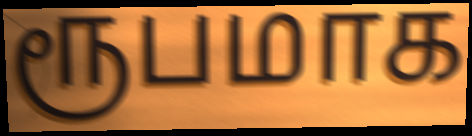
ரூபமாக